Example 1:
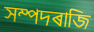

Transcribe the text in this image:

সম্পদৰাজি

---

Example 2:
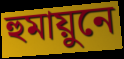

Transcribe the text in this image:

হুমায়ুনে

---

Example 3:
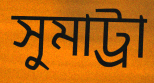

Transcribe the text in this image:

সুমাট্ৰা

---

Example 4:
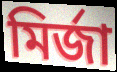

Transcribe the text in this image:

মিৰ্জা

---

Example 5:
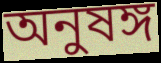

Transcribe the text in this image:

অনুষঙ্গ